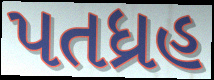
પતધ્રહ